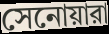
সেনোয়ারা